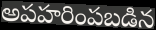
అపహరింపబడిన